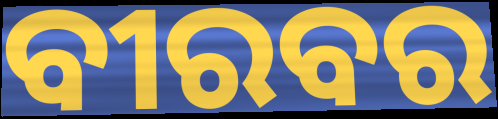
ବୀରବର